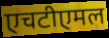
एचटीएमल